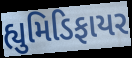
હ્યુમિડિફાયર